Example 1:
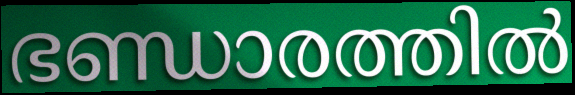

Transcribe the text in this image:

ഭണ്ഡാരത്തിൽ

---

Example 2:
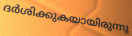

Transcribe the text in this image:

ദർശിക്കുകയായിരുന്നു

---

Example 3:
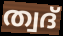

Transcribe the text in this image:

ത്വദ്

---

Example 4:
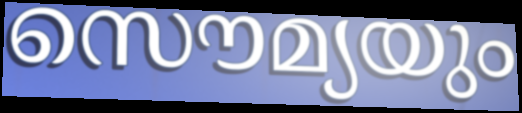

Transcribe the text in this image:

സൌമ്യയും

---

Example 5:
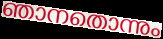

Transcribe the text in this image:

ഞാനതൊന്നും